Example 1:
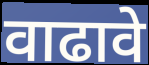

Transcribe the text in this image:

वाढावे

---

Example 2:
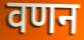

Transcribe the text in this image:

वणन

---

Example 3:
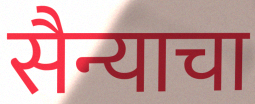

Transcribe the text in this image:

सैन्याचा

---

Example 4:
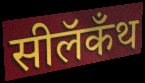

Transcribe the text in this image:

सीलॅकँथ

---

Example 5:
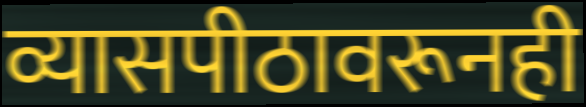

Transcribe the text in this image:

व्यासपीठावरूनही